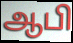
ஆபி